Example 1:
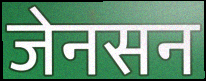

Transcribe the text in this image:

जेनसन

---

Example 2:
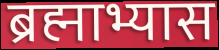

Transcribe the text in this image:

ब्रह्माभ्यास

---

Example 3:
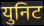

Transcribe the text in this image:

युनिट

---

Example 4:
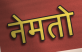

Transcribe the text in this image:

नेमतो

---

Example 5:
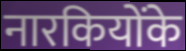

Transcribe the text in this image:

नारकियोंके